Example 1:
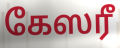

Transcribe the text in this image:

கேஸரீ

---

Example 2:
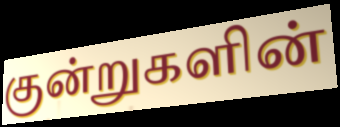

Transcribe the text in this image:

குன்றுகளின்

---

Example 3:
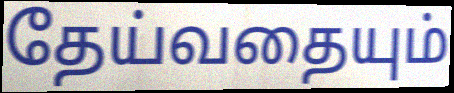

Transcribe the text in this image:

தேய்வதையும்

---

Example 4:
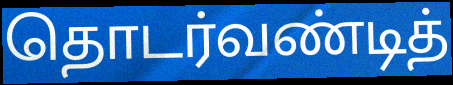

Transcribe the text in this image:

தொடர்வண்டித்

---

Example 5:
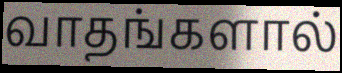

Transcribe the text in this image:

வாதங்களால்